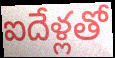
ఐదేళ్లతో